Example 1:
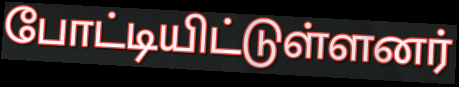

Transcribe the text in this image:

போட்டியிட்டுள்ளனர்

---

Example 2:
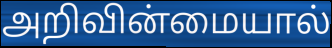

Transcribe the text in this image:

அறிவின்மையால்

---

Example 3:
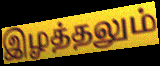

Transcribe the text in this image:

இழத்தலும்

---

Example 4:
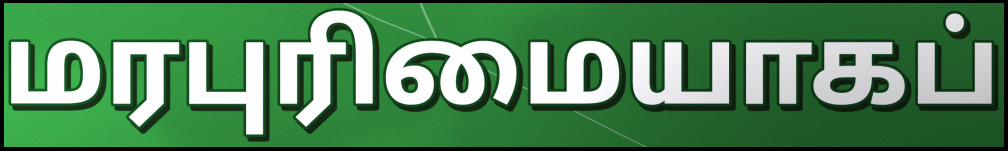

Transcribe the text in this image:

மரபுரிமையாகப்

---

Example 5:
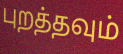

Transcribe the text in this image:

புறத்தவும்